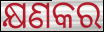
କ୍ଷଣକର